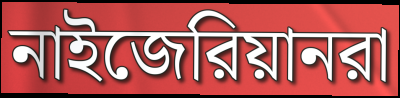
নাইজেরিয়ানরা